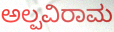
ಅಲ್ಪವಿರಾಮ